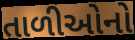
તાળીઓનો